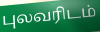
புலவரிடம்